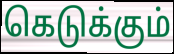
கெடுக்கும்